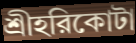
শ্রীহরিকোটা